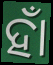
ହାଁ